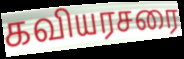
கவியரசரை